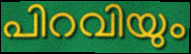
പിറവിയും